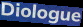
Diologue